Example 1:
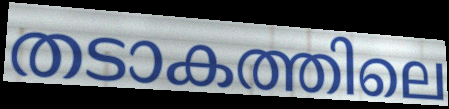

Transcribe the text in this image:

തടാകത്തിലെ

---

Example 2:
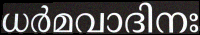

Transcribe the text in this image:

ധർമവാദിനഃ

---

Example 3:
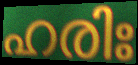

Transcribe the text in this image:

ഹരിഃ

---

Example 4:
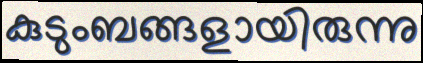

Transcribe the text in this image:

കുടുംബങ്ങളായിരുന്നു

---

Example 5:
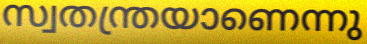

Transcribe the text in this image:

സ്വതന്ത്രയാണെന്നു